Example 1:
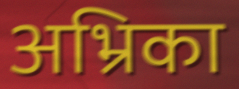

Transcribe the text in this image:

अभ्रिका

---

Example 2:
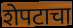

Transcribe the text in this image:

शेपटाचा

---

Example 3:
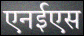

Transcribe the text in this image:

एनईएस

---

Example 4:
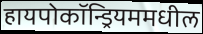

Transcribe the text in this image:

हायपोकॉन्ड्रियममधील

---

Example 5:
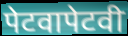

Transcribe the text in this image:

पेटवापेटवी